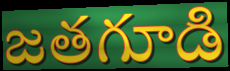
జతగూడి